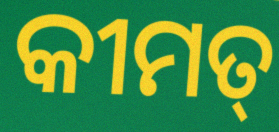
କୀମତ୍